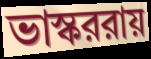
ভাস্কররায়